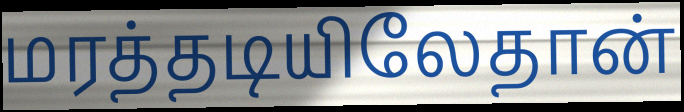
மரத்தடியிலேதான்